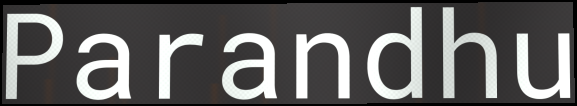
Parandhu